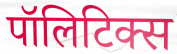
पॉलिटिक्स